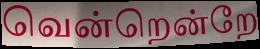
வென்றென்றே